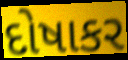
દોષાકર